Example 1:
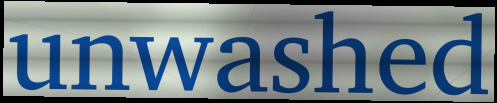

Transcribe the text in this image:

unwashed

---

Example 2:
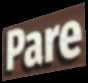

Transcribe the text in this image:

Pare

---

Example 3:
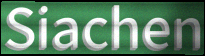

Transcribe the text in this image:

Siachen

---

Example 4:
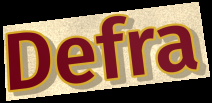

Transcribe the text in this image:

Defra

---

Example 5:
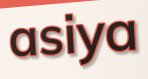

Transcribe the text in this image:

asiya